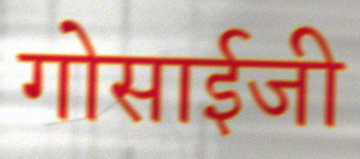
गोसाईजी